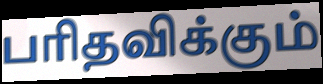
பரிதவிக்கும்